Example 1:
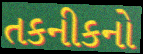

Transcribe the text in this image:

તકનીકનો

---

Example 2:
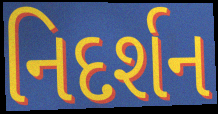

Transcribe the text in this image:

નિદર્શન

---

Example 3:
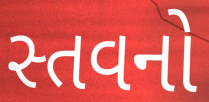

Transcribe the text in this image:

સ્તવનો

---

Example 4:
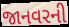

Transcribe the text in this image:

જાનવરની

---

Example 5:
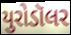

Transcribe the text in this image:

યુરોડૉલર